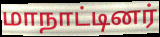
மாநாட்டினர்